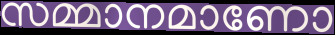
സമ്മാനമാണോ